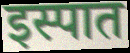
इस्पात